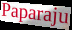
Paparaju